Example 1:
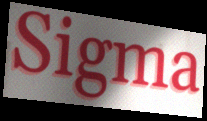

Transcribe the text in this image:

Sigma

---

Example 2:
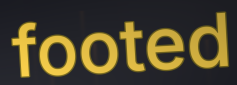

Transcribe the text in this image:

footed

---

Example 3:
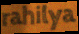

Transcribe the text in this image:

rahilya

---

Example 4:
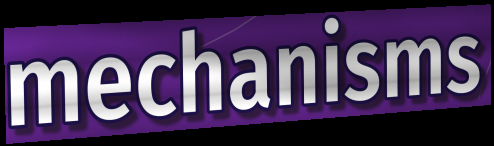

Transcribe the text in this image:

mechanisms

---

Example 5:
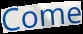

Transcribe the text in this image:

Come